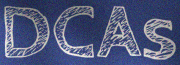
DCAs